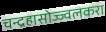
चन्द्रहासोज्ज्वलकरा